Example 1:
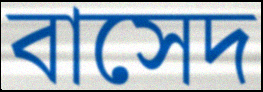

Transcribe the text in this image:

বাসেদ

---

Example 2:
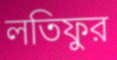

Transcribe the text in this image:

লতিফুর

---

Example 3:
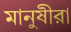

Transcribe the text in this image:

মানুষীরা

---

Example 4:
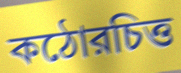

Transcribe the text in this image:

কঠোরচিত্ত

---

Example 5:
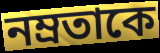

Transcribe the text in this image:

নম্রতাকে